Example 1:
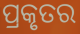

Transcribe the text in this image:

ପ୍ରକୃତର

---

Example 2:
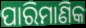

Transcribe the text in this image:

ପାରିମାଣିକ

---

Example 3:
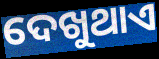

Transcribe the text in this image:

ଦେଖୁଥାଏ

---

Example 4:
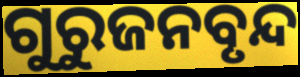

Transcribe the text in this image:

ଗୁରୁଜନବୃନ୍ଦ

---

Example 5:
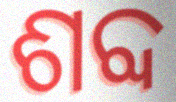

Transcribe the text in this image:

ଶବ୍ଦ